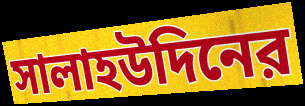
সালাহউদিনের